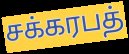
சக்கரபத்